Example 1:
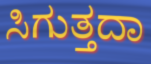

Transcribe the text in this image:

ಸಿಗುತ್ತದಾ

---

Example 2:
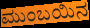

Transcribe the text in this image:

ಮುಂಬಯಿನ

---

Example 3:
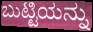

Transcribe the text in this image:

ಬುಟ್ಟಿಯನ್ನು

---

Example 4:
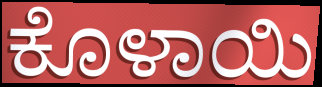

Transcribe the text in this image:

ಕೊಳಾಯಿ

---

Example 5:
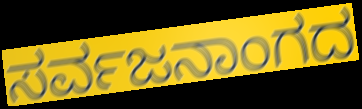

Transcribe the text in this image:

ಸರ್ವಜನಾಂಗದ